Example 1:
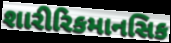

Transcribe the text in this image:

શારીરિકમાનસિક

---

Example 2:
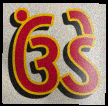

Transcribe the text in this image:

ઉંડે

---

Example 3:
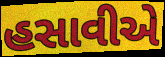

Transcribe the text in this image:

હસાવીએ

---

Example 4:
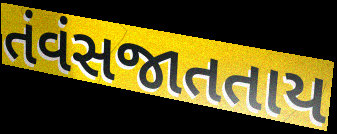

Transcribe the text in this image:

તંવંસજાતતાય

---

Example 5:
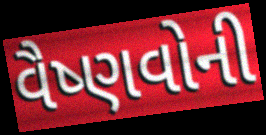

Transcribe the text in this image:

વૈષ્ણવોની